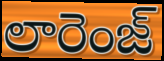
లారెంజ్